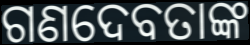
ଗଣଦେବତାଙ୍କ